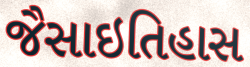
જૈસાઇતિહાસ